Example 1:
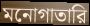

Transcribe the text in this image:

মনোগাতারি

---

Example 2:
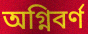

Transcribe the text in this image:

অগ্নিবর্ণ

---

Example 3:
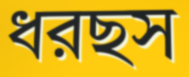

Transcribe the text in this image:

ধরছস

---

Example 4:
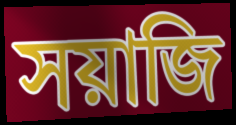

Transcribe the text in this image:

সয়াজি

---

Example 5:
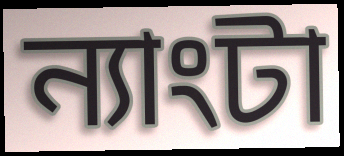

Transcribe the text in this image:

ন্যাংটা